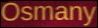
Osmany